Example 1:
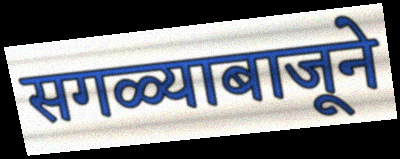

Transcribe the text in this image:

सगळ्याबाजूने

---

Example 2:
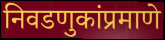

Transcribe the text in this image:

निवडणुकांप्रमाणे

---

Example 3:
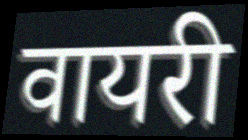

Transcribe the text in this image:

वायरी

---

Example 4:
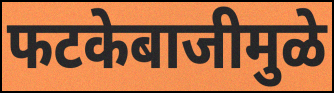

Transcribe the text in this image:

फटकेबाजीमुळे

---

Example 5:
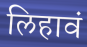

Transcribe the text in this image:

लिहावं